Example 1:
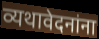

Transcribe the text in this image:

व्यथावेदनांना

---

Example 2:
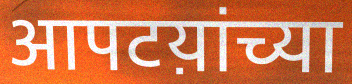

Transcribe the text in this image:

आपटय़ांच्या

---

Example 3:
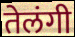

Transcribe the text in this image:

तेलंगी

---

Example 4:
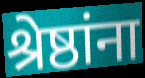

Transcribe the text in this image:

श्रेष्ठांना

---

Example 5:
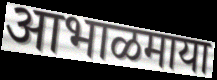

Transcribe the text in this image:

आभाळमाया